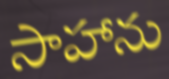
సాహాను